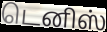
டெனிஸ்